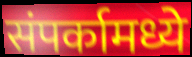
संपर्कामध्ये